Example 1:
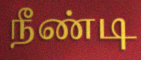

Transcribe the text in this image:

நீண்டி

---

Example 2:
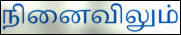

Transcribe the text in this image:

நினைவிலும்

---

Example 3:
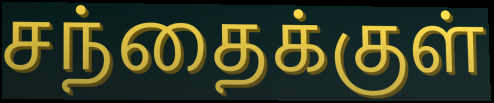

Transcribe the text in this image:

சந்தைக்குள்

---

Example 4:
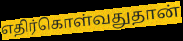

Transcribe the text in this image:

எதிர்கொள்வதுதான்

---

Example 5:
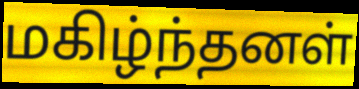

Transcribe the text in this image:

மகிழ்ந்தனள்